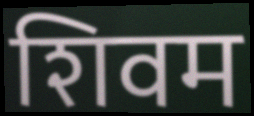
शिवम